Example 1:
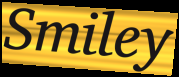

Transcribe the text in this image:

Smiley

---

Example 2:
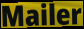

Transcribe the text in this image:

Mailer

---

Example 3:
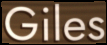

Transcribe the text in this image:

Giles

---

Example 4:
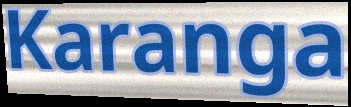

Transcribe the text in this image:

Karanga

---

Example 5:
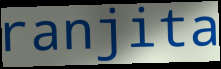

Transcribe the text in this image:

ranjita